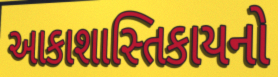
આકાશાસ્તિકાયનો